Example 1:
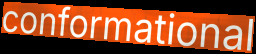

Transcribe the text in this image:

conformational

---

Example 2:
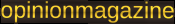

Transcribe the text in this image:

opinionmagazine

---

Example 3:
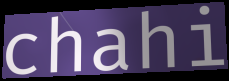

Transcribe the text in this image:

chahi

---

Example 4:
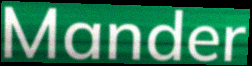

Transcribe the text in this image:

Mander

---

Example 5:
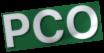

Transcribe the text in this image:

PCO